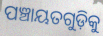
ପଞ୍ଚାୟତଗୁଡ଼ିକୁ